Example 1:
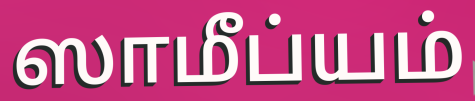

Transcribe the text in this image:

ஸாமீப்யம்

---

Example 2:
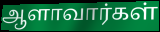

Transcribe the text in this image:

ஆளாவார்கள்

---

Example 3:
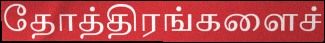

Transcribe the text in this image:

தோத்திரங்களைச்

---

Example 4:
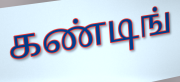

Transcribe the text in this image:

கண்டிங்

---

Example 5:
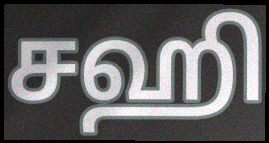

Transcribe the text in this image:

சஹி